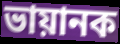
ভায়ানক